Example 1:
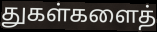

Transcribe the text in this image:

துகள்களைத்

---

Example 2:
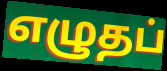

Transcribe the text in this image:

எழுதப்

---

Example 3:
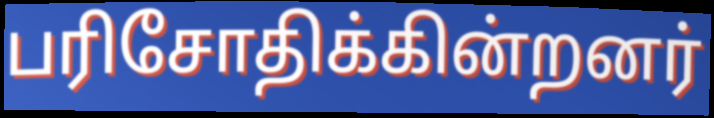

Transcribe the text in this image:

பரிசோதிக்கின்றனர்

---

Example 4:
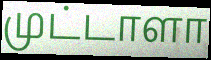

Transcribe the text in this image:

முட்டாளா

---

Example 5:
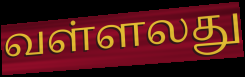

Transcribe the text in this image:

வள்ளலது